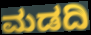
ಮಡದಿ